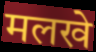
मलखे